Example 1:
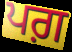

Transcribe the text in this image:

ਪਗ਼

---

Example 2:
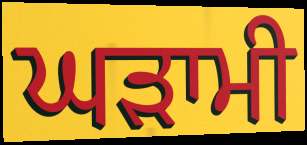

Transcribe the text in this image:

ਘੜਾਮੀ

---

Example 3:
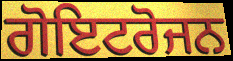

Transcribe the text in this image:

ਗੋਇਟਰੋਜਨ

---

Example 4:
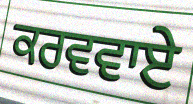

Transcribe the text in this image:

ਕਰਵਵਾਏ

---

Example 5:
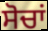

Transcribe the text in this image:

ਸੋਚਾਂ